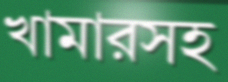
খামারসহ